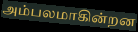
அம்பலமாகின்றன